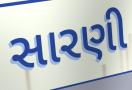
સારણી